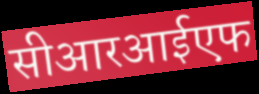
सीआरआईएफ